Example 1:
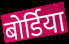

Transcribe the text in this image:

बोर्डिया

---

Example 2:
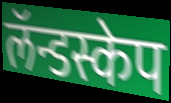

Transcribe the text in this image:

लॅन्डस्केप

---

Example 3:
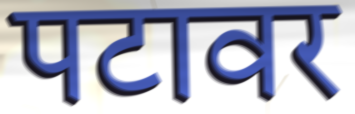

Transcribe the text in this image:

पटावर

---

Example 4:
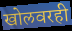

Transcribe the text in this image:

खोलवरही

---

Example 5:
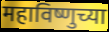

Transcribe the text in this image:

महाविष्णुच्या